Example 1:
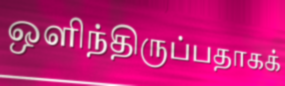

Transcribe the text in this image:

ஒளிந்திருப்பதாகக்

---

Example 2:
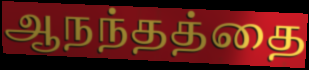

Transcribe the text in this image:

ஆநந்தத்தை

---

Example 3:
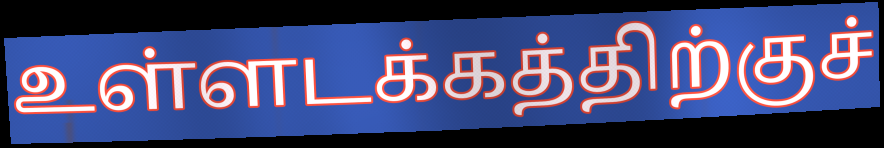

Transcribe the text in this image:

உள்ளடக்கத்திற்குச்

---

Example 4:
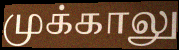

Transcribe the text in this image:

முக்காலு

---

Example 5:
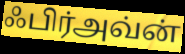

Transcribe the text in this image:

ஃபிர்அவ்ன்